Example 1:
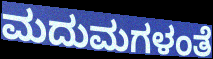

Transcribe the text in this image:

ಮದುಮಗಳಂತೆ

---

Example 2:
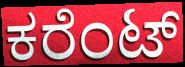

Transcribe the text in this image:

ಕರೆಂಟ್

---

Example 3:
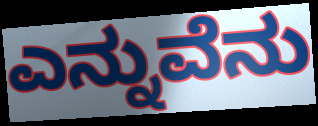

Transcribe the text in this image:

ಎನ್ನುವೆನು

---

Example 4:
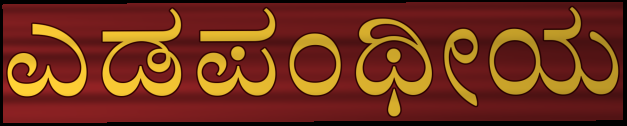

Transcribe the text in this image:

ಎಡಪಂಥೀಯ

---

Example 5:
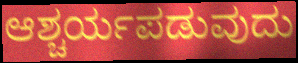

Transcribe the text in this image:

ಆಶ್ಚರ್ಯಪಡುವುದು